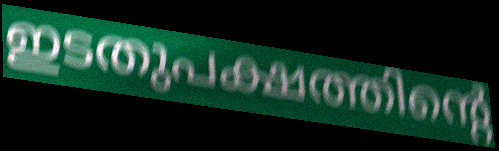
ഇടതുപക്ഷത്തിന്റെ